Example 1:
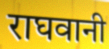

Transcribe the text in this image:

राघवानी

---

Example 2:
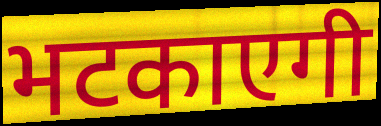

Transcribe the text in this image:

भटकाएगी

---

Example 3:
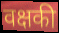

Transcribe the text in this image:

वक्षकी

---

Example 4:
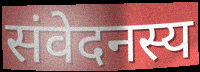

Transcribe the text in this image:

संवेदनस्य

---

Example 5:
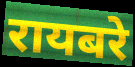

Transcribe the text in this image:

रायबरे